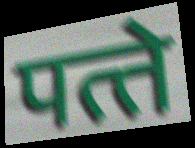
पत्‍ते